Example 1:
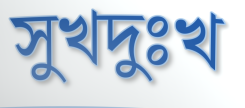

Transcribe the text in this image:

সুখদুঃখ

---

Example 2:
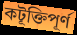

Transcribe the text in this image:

কটূক্তিপূর্ণ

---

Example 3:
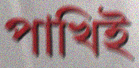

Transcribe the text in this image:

পাখিই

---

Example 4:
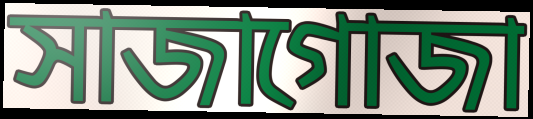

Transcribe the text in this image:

সাজাগোজা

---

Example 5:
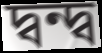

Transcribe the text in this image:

দ্বন্দ্ব